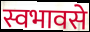
स्वभावसे